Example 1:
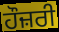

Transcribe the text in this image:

ਹੌਜ਼ਰੀ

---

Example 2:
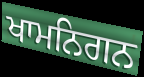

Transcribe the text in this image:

ਖਾਮਨਿਗਨ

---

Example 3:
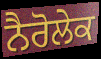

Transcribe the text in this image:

ਨੈਰੋਲੇਕ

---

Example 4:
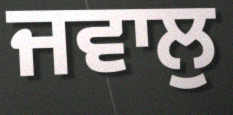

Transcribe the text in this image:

ਜਵਾਲੁ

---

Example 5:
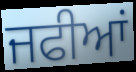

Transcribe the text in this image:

ਜਫੀਆਂ